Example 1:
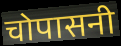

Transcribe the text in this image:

चोपासनी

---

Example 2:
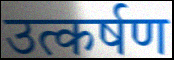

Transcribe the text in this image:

उत्कर्षण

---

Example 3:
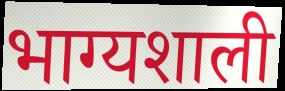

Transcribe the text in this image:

भाग्यशाली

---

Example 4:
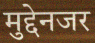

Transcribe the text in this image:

मुद्देनजर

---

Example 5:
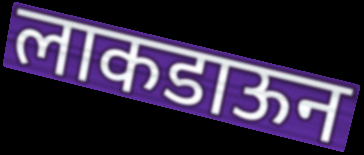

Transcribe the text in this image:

लाकडाऊन